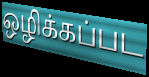
ஒழிக்கப்பட